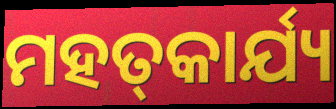
ମହତ୍‌କାର୍ଯ୍ୟ